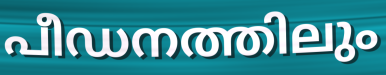
പീഡനത്തിലും